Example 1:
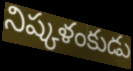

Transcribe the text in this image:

నిష్కళంకుడు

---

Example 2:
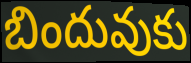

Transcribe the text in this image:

బిందువుకు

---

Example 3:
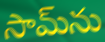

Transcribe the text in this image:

సామ్‌ను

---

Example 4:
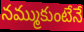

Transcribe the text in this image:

నమ్ముకుంటేనే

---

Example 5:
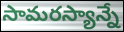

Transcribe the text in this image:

సామరస్యాన్నే